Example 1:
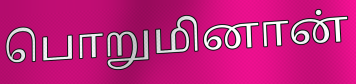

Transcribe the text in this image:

பொறுமினான்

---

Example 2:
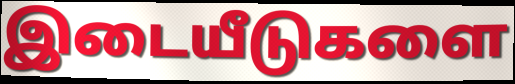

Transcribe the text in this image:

இடையீடுகளை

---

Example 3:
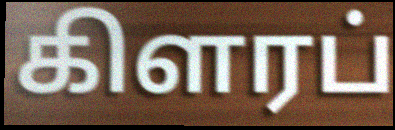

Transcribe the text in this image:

கிளரப்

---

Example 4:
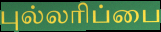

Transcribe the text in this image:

புல்லரிப்பை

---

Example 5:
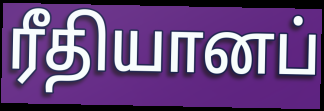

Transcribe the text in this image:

ரீதியானப்